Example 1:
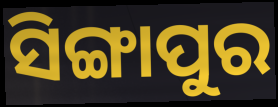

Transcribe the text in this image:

ସିଙ୍ଗାପୁର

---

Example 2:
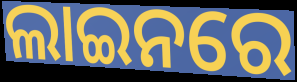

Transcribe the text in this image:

ଲାଇନରେ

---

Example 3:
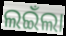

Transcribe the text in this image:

ଲଇଁଲା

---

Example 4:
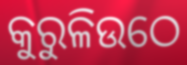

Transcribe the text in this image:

କୁରୁଳିଉଠେ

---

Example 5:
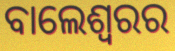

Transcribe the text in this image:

ବାଲେଶ୍ୱରର